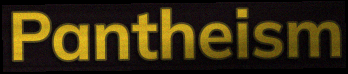
Pantheism